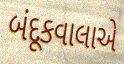
બંદૂકવાલાએ